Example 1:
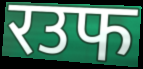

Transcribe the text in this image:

रउफ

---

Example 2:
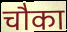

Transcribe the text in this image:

चौका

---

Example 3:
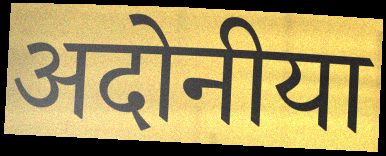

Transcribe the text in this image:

अदोनीया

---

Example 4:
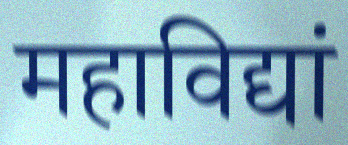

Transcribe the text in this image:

महाविद्यां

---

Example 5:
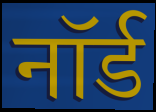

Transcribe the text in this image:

नॉर्ड